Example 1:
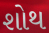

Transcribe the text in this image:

શોથ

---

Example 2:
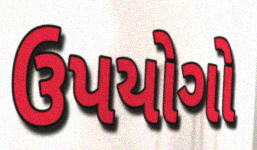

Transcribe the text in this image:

ઉપયોગો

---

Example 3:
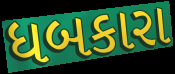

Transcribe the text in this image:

ધબકારા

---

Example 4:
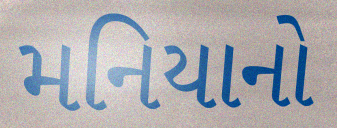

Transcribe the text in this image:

મનિયાનો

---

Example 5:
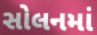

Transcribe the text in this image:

સોલનમાં